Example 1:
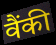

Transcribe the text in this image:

वैंकी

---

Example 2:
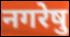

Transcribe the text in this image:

नगरेषु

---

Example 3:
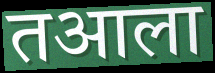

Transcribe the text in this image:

तआला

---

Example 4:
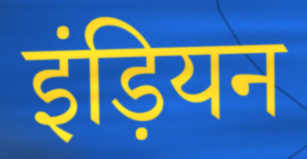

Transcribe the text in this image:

इंड़ियन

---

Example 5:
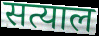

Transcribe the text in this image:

सत्याल